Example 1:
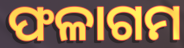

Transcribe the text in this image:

ଫଳାଗମ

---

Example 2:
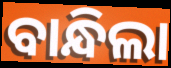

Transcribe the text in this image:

ବାନ୍ଧିଲା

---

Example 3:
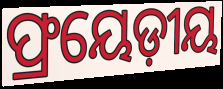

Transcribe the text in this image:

ଫ୍ରୟେଡ଼ୀୟ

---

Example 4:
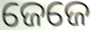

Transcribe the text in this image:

ଜେଜେ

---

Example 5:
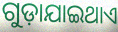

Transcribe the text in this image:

ଗୁଡ଼ାଯାଇଥାଏ